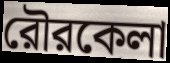
রৌরকেলা